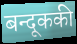
बन्दूककी